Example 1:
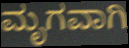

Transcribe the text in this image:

ಮೃಗವಾಗಿ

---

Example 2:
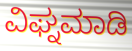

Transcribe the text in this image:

ವಿಘ್ನಮಾಡಿ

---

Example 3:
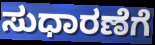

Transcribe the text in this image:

ಸುಧಾರಣೆಗೆ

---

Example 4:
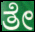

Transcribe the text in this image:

ತೇ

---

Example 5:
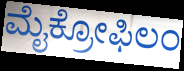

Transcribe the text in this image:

ಮೈಕ್ರೋಫಿಲಂ